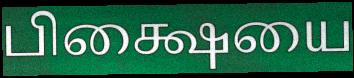
பிக்ஷையை